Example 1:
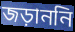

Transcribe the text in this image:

জড়াননি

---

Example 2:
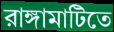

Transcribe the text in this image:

রাঙ্গামাটিতে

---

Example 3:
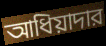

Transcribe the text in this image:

আধিয়াদার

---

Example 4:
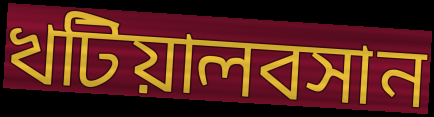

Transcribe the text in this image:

খটিয়ালবসান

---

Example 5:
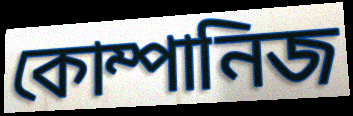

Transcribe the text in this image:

কোম্পানিজ